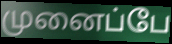
முனைப்பே